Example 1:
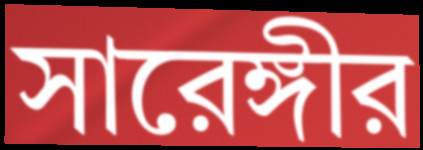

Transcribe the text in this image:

সারেঙ্গীর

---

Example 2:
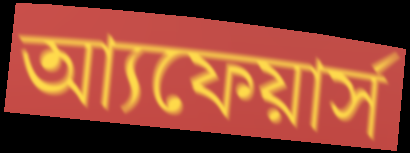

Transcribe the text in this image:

আ্যফেয়ার্স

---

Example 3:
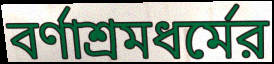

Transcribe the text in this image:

বর্ণাশ্রমধর্মের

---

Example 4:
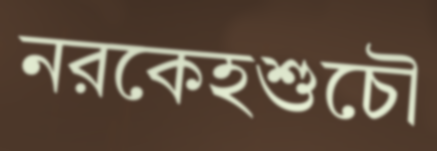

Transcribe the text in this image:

নরকেহশুচৌ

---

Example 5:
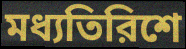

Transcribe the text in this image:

মধ্যতিরিশে